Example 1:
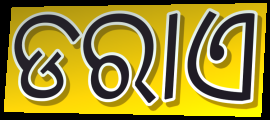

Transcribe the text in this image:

ଡରାଏ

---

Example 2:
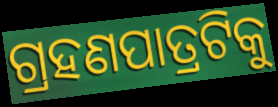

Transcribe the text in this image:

ଗ୍ରହଣପାତ୍ରଟିକୁ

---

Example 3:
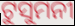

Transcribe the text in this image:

ଟୁସୁମନୀ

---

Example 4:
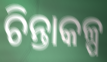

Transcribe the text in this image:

ଚିନ୍ତାକଳ୍ପ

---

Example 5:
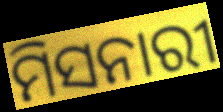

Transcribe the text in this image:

ମିସନାରୀ